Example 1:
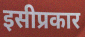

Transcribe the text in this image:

इसीप्रकार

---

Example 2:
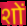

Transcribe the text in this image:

शों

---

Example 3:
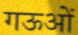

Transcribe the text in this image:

गऊओं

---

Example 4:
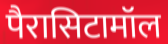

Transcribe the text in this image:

पैरासिटामॉल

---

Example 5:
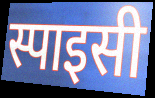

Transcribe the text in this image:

स्पाइसी